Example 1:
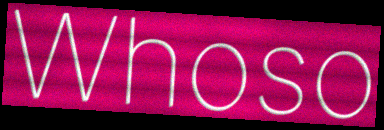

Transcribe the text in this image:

Whoso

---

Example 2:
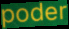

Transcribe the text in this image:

poder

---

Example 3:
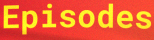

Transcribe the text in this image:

Episodes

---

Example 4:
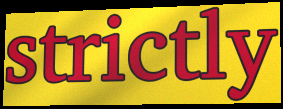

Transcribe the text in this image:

strictly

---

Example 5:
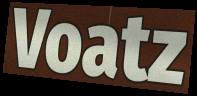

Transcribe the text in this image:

Voatz